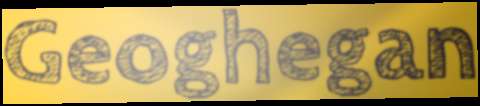
Geoghegan